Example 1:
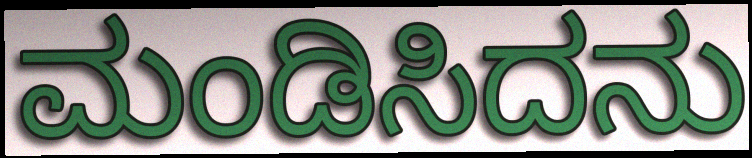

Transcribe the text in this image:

ಮಂಡಿಸಿದನು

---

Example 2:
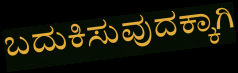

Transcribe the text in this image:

ಬದುಕಿಸುವುದಕ್ಕಾಗಿ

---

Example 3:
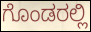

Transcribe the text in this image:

ಗೊಂಡರಲ್ಲಿ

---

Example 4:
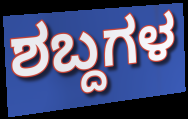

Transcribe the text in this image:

ಶಬ್ದಗಳ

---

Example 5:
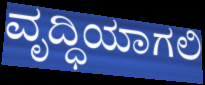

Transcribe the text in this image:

ವೃದ್ಧಿಯಾಗಲಿ